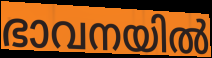
ഭാവനയിൽ